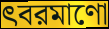
ৎবরমাণো